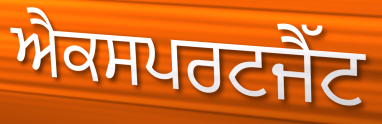
ਐਕਸਪਰਟਜੈੱਟ